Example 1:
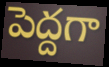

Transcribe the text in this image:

పెద్దగా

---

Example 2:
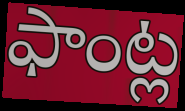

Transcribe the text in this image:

ఫాంట్ల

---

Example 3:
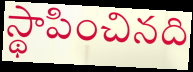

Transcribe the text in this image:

స్థాపించినది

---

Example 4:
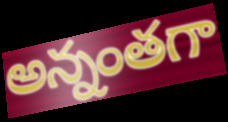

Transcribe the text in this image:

అన్నంతగా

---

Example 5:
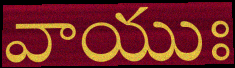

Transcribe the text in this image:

వాయుః